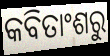
କବିତାଂଶରୁ